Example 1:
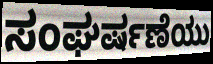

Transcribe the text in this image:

ಸಂಘರ್ಷಣೆಯು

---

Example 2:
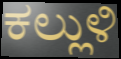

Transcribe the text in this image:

ಕಲ್ಲುಳಿ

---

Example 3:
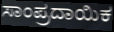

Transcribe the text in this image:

ಸಾಂಪ್ರದಾಯಿಕ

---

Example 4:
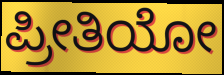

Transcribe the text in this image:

ಪ್ರೀತಿಯೋ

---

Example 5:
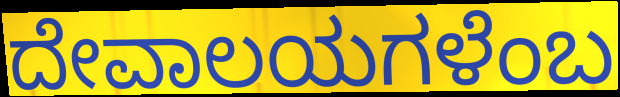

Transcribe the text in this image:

ದೇವಾಲಯಗಳೆಂಬ